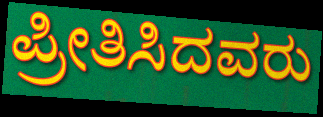
ಪ್ರೀತಿಸಿದವರು